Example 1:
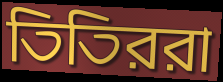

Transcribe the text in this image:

তিতিররা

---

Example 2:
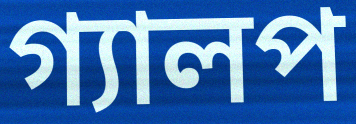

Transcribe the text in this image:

গ্যালপ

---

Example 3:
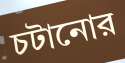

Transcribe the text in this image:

চটানোর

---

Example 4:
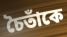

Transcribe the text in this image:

চৈতাঁকে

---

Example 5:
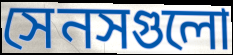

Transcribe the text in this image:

সেনসগুলো